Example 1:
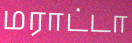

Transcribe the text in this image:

மராட்டா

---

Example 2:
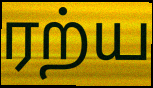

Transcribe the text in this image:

ரற்ய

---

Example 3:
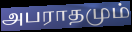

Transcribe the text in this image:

அபராதமும்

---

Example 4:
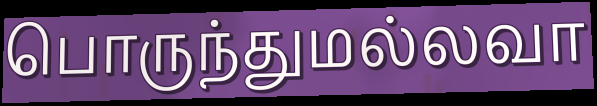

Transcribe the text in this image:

பொருந்துமல்லவா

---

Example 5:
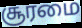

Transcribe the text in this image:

சூரமை